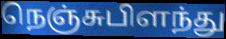
நெஞ்சுபிளந்து